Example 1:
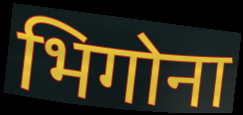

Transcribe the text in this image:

भिगोना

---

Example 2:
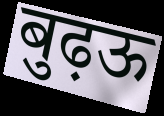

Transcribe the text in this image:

बुढ़ऊ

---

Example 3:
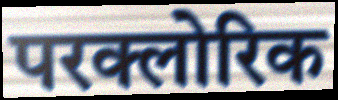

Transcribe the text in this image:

परक्लोरिक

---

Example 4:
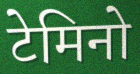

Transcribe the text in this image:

टेमिनो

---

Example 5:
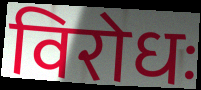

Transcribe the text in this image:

विरोधः